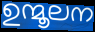
ഉന്മൂലന